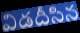
విడదీసిన